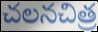
చలనచిత్ర